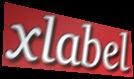
xlabel